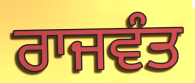
ਰਾਜਵੰਤ